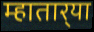
म्हातार्‍या